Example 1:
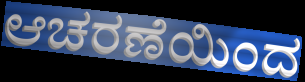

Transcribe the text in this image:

ಆಚರಣೆಯಿಂದ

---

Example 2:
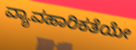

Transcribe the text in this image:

ವ್ಯಾವಹಾರಿಕತೆಯೇ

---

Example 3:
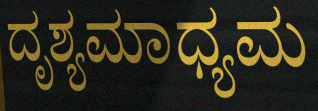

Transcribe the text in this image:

ದೃಶ್ಯಮಾಧ್ಯಮ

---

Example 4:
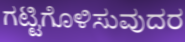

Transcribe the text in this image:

ಗಟ್ಟಿಗೊಳಿಸುವುದರ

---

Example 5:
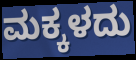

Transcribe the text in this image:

ಮಕ್ಕಳದು